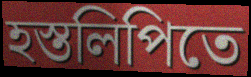
হস্তলিপিতে